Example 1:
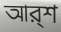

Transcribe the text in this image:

আর্‌শ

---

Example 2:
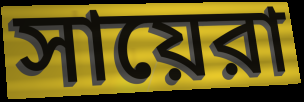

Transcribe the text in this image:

সায়েরা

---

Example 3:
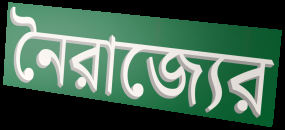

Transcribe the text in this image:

নৈরাজ্যের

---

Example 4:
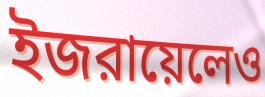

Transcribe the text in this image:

ইজরায়েলেও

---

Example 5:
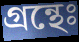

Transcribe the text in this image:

গ্রন্থেঃ